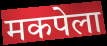
मकपेला